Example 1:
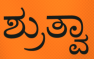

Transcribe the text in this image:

ಶ್ರುತ್ವಾ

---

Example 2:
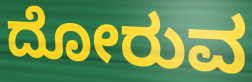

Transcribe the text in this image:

ದೋರುವ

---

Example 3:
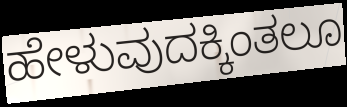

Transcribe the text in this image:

ಹೇಳುವುದಕ್ಕಿಂತಲೂ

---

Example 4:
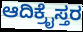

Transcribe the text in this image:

ಆದಿಕ್ರೈಸ್ತರ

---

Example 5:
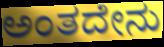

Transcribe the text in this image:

ಅಂತದೇನು